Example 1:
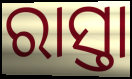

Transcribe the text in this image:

ରାସ୍ତା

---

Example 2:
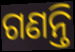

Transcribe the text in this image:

ଗଣନ୍ତି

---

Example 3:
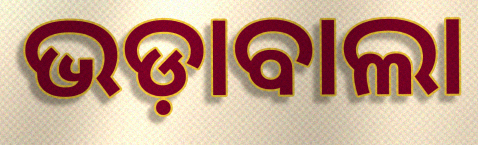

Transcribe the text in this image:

ଭଡ଼ାବାଲା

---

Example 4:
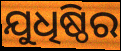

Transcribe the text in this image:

ଯୁଧିଷ୍ଠିର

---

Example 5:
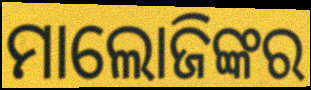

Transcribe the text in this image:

ମାଲୋଜିଙ୍କର